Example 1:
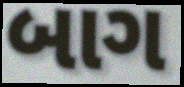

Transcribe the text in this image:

બાગ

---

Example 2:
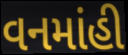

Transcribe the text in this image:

વનમાંહી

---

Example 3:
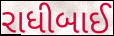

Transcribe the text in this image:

રાધીબાઈ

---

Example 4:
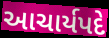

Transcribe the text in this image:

આચાર્યપદે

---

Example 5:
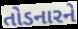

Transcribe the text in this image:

તોડનારને